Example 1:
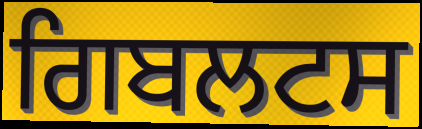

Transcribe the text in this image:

ਗਿਬਲਟਸ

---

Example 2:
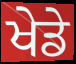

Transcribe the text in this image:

ਖੇਡੇ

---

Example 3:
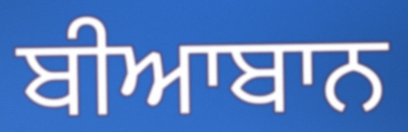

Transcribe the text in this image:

ਬੀਆਬਾਨ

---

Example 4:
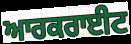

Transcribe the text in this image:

ਆਰਕਰਾਈਟ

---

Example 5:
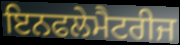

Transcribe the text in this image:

ਇਨਫਲੇਮੈਟਰੀਜ